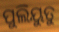
ପୁଲିୟୁତୁ